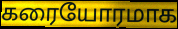
கரையோரமாக